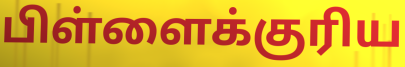
பிள்ளைக்குரிய